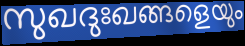
സുഖദുഃഖങ്ങളെയും